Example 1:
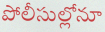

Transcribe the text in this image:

పోలీసుల్లోనూ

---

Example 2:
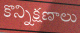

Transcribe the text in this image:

కొన్నిక్షణాలు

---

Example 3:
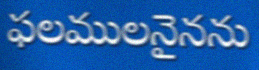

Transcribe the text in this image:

ఫలములనైనను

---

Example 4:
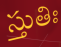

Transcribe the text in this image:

స్తుతిః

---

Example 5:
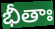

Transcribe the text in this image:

భీతాః